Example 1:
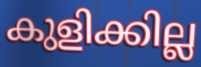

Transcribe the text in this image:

കുളിക്കില്ല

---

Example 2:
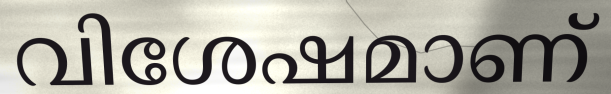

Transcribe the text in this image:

വിശേഷമാണ്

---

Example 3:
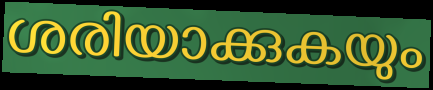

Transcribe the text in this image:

ശരിയാക്കുകയും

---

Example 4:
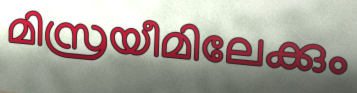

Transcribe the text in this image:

മിസ്രയീമിലേക്കും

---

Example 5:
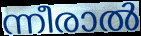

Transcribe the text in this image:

ന്നീരാൽ